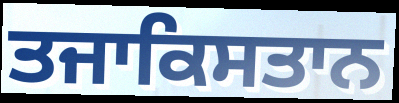
ਤਜਾਕਿਸਤਾਨ